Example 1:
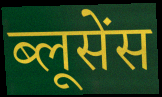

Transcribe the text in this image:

ब्लूसेंस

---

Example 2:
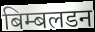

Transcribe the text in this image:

बिम्बलडन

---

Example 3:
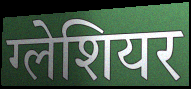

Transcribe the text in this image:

ग्‍लेशियर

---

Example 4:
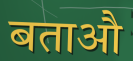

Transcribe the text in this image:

बताऔ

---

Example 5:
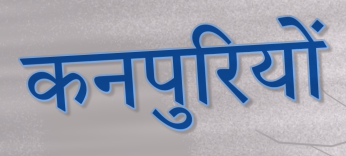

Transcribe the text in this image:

कनपुरियों